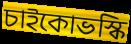
চাইকোভস্কি